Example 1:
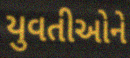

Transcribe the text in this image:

યુવતીઓને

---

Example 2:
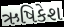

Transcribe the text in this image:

ઋષિકેશ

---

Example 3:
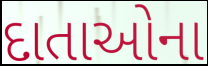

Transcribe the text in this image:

દાતાઓના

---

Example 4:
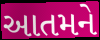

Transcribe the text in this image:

આતમને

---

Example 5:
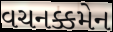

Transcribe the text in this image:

વચનક્કમેન